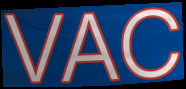
VAC